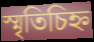
স্মৃতিচিহ্ন